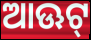
ଆଊଟ୍